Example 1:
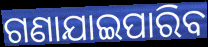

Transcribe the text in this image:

ଗଣାଯାଇପାରିବ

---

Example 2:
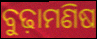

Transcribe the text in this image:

ବୁଢ଼ାମଣିଷ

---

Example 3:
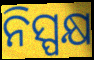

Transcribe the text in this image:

ନିସ୍ପକ୍ଷ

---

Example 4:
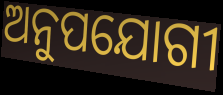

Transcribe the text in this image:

ଅନୁପଯୋଗୀ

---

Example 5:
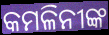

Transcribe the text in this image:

କମଳିନୀଙ୍କ